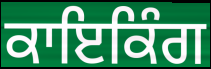
ਕਾਇਕਿੰਗ